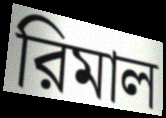
রিমাল